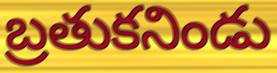
బ్రతుకనిండు